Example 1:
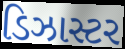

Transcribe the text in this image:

ડિઝાસ્ટર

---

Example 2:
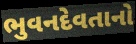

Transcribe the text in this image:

ભુવનદેવતાનો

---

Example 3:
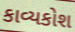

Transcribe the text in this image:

કાવ્યકોશ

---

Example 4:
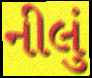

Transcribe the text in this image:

નીલું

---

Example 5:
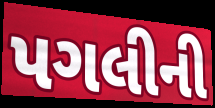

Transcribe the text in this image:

પગલીની